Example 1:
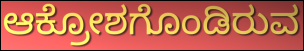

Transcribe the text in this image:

ಆಕ್ರೋಶಗೊಂಡಿರುವ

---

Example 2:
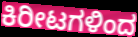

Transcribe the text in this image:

ಕಿರೀಟಗಳಿಂದ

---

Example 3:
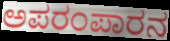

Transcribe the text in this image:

ಅಪರಂಪಾರನ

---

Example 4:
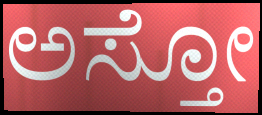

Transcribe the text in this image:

ಅಸ್ತೋ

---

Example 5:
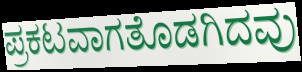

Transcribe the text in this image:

ಪ್ರಕಟವಾಗತೊಡಗಿದವು